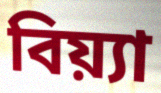
বিয়্যা